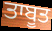
ਤਾਬੂਤ